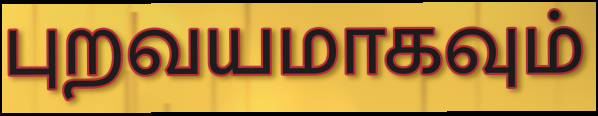
புறவயமாகவும்